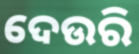
ଦେଉରି